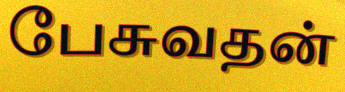
பேசுவதன்